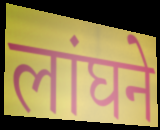
लांघने